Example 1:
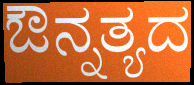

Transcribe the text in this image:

ಔನ್ನತ್ಯದ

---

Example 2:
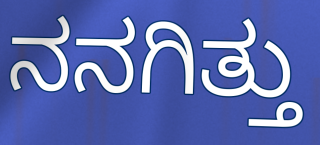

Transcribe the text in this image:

ನನಗಿತ್ತು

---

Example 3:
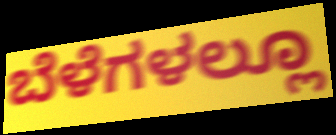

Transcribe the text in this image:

ಬೆಳೆಗಳಲ್ಲೂ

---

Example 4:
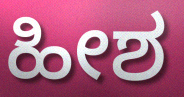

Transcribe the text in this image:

ಹೀಶ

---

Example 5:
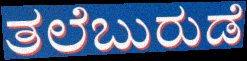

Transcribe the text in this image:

ತಲೆಬುರುಡೆ